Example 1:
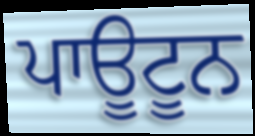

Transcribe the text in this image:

ਪਾਊਟੂਨ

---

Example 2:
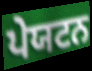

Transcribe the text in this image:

ਪੇਯਟਨ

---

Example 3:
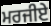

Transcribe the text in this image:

ਮਰਜੀਏ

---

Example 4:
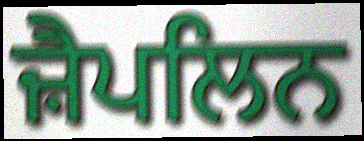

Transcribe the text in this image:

ਜ਼ੈਪਲਿਨ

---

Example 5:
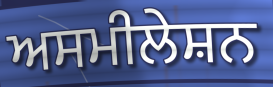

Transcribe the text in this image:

ਅਸਮੀਲੇਸ਼ਨ